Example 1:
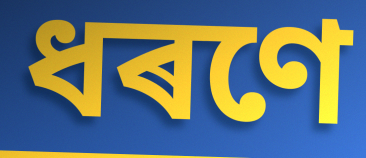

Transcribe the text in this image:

ধৰণে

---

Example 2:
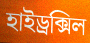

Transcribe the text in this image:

হাইড্ৰক্সিল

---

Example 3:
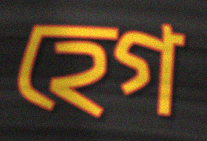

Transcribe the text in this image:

হেগ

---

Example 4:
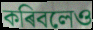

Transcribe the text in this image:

কৰিবলেও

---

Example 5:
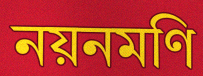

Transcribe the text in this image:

নয়নমণি